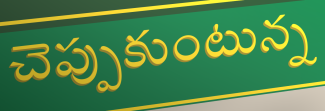
చెప్పుకుంటున్న